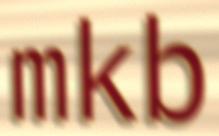
mkb